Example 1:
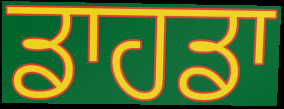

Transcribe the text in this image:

ਡਾਹਡਾ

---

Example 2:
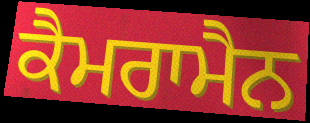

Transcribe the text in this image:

ਕੈਮਰਾਮੈਨ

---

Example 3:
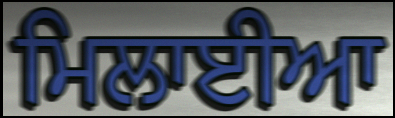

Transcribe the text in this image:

ਮਿਲਾਈਆ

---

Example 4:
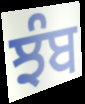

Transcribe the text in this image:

ਝੰਬ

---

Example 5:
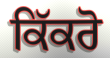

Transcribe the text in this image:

ਕਿੱਕਰੋ